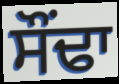
ਸੌਂਢਾ